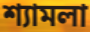
শ্যামলা